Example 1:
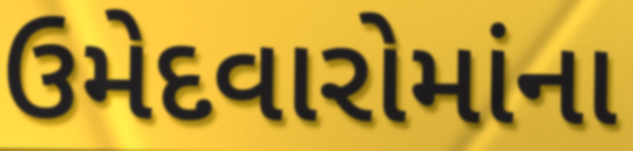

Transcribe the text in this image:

ઉમેદવારોમાંના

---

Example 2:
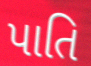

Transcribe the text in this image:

પાતિ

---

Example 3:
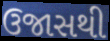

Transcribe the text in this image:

ઉજાસથી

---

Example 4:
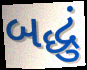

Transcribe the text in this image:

બદ્ધું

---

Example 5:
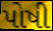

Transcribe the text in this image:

પોષી